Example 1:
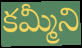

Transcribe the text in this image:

కమ్మీని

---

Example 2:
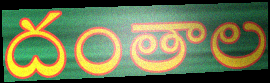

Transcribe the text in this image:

దంతాల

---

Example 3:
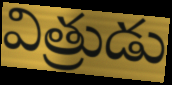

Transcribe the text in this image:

విత్రుడు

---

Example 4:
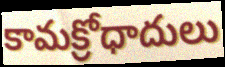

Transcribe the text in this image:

కామక్రోధాదులు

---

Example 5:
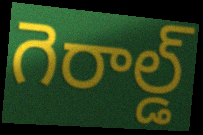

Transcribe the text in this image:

గెరాల్డ్